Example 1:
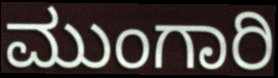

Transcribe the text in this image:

ಮುಂಗಾರಿ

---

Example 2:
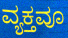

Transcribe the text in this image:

ವ್ಯಕ್ತವೂ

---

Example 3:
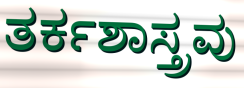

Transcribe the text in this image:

ತರ್ಕಶಾಸ್ತ್ರವು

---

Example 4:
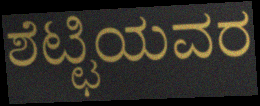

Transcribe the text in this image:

ಶೆಟ್ಟಿಯವರ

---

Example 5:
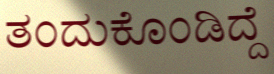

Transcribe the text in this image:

ತಂದುಕೊಂಡಿದ್ದೆ